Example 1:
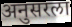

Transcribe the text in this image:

अनुसरला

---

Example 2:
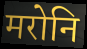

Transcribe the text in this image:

मरोनि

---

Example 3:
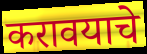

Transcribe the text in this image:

करावयाचे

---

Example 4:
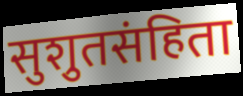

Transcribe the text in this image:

सुश्रुतसंहिता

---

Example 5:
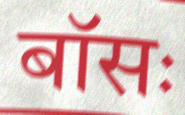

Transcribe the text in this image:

बॉसः